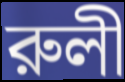
রুলী